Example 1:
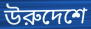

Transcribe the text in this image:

উরুদেশে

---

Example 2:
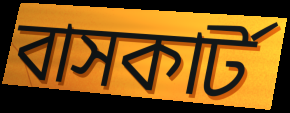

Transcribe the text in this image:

বাসকার্ট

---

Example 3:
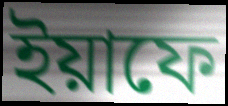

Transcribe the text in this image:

ইয়াফে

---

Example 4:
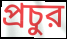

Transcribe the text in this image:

প্রচুর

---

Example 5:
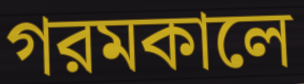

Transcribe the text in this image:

গরমকালে